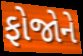
ફોજોને